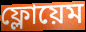
ফ্লোয়েম